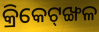
କ୍ରିକେଟ୍‌ଙ୍ଖଳ